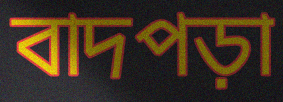
বাদপড়া